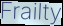
Frailty